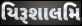
યિરૂશાલમિ